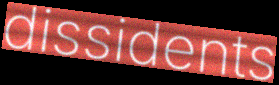
dissidents